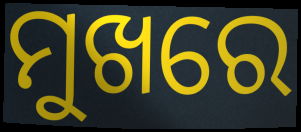
ମୁଖରେ